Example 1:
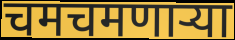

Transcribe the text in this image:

चमचमणार्‍या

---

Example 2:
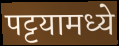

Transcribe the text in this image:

पट्टयामध्ये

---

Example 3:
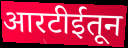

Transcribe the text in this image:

आरटीईतून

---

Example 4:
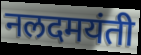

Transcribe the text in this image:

नलदमयंती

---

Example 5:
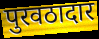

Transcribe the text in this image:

पुरवठादार